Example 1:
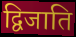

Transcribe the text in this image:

द्विजाति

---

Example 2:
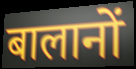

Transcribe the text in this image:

बालानों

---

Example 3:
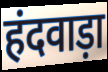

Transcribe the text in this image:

हंदवाड़ा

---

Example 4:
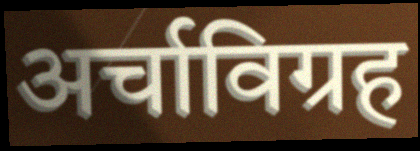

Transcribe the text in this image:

अर्चाविग्रह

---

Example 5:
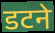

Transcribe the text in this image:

डटने